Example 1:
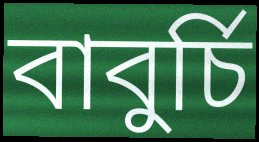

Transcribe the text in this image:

বাবুর্চি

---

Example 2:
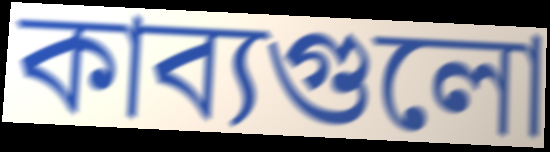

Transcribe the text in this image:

কাব্যগুলো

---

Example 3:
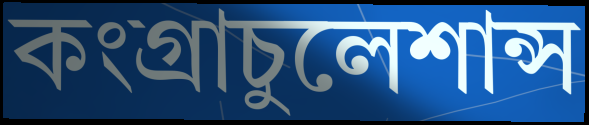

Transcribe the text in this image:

কংগ্রাচুলেশান্স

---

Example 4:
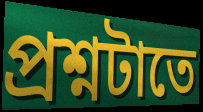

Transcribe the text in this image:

প্রশ্নটাতে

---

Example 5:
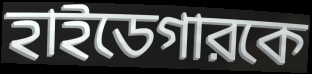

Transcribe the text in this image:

হাইডেগারকে